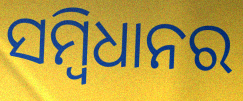
ସମ୍ବିଧାନର